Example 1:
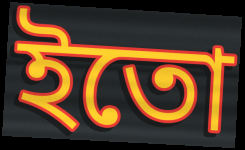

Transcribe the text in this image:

ইতো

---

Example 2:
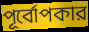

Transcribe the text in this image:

পূর্বোপকার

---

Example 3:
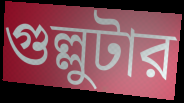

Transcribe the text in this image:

গুল্লুটার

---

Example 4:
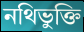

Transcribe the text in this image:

নথিভুক্তি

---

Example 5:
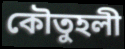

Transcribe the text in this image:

কৌতুহলী